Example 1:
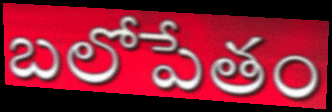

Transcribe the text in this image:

బలోపేతం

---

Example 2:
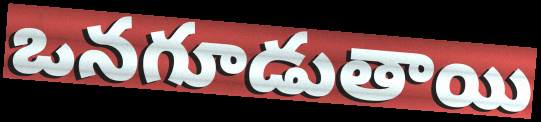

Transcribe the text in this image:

ఒనగూడుతాయి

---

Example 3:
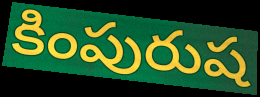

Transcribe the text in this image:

కింపురుష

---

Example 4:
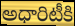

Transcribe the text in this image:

అధారిటీకి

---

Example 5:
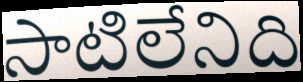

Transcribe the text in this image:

సాటిలేనిది